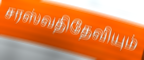
சரஸ்வதிதேவியும்